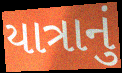
યાત્રાનું